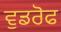
ਵੁਡਰੋਫ